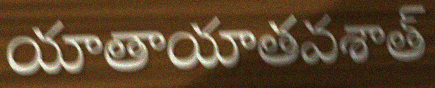
యాతాయాతవశాత్